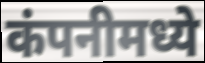
कंपनीमध्ये